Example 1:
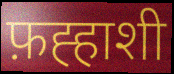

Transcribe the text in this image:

फ़ह्हाशी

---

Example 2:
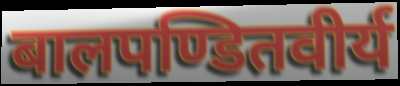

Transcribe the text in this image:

बालपण्डितवीर्य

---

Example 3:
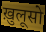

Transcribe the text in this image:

ख़ुलूसो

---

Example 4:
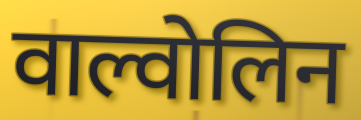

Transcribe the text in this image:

वाल्वोलिन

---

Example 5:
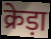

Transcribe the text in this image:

क्रेड़ा